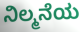
ನಿಲ್ಮನೆಯ